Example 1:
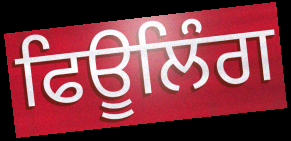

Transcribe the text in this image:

ਫਿਊਲਿੰਗ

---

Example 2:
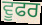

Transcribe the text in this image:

ਵੂਫਰ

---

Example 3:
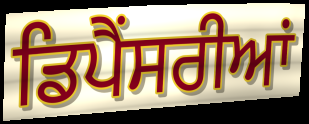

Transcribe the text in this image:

ਡਿਪੈਂਸਰੀਆਂ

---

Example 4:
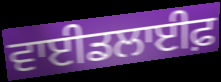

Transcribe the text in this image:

ਵਾਈਡਲਾਈਫ਼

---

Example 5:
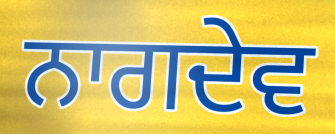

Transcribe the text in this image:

ਨਾਗਦੇਵ